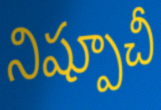
నిష్పూచీ